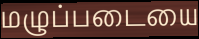
மழுப்படையை